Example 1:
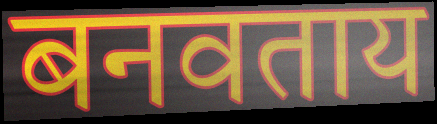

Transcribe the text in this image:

बनवताय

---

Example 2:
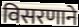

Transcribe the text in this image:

विसरणाने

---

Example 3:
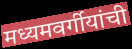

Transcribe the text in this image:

मध्यमवर्गीयांची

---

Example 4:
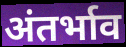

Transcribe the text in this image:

अंतर्भाव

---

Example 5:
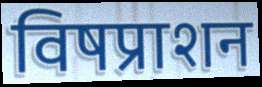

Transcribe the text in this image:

विषप्राशन